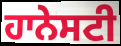
ਹਾਨੇਸਟੀ